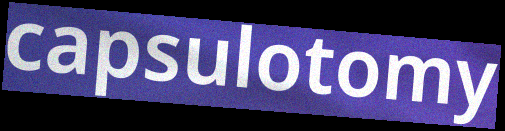
capsulotomy